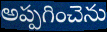
అప్పగించెను